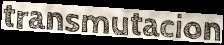
transmutacion